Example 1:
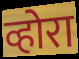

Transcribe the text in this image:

व्होरा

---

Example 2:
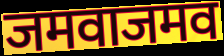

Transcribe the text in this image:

जमवाजमव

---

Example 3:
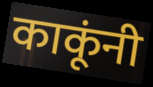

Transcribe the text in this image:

काकूंनी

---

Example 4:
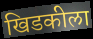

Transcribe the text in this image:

खिडकीला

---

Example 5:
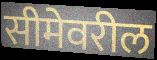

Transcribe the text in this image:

सीमेवरील